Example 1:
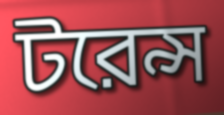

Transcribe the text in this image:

টরেন্স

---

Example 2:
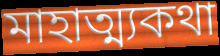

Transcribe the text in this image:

মাহাত্ম্যকথা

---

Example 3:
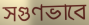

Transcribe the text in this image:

সগুণভাবে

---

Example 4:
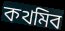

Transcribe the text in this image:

কথমিব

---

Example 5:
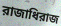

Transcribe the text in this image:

রাজাধিরাজ